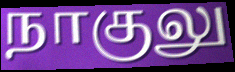
நாகுலு